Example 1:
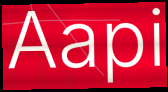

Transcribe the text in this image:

Aapi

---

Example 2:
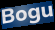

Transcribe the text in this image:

Bogu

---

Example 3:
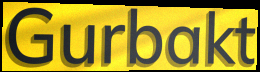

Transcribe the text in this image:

Gurbakt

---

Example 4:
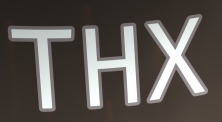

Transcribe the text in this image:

THX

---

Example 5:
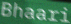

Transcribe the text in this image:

Bhaari